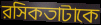
রসিকতাটাকে